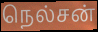
நெல்சன்